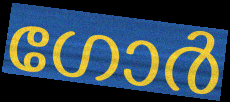
ഗോർ